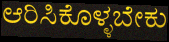
ಆರಿಸಿಕೊಳ್ಳಬೇಕು